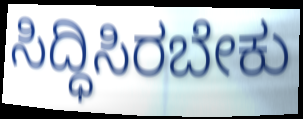
ಸಿದ್ಧಿಸಿರಬೇಕು